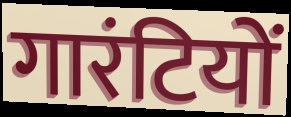
गारंटियों